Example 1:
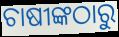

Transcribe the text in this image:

ଚାଷୀଙ୍କଠାରୁ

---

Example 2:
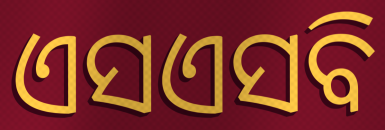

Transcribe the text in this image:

ଏସଏସବି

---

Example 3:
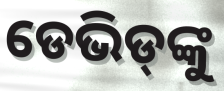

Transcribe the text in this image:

ଡେଭିଡ୍‌ଙ୍କୁ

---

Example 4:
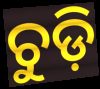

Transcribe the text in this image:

ଚୁଡ଼ି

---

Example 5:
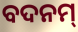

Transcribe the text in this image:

ବଦନମ୍